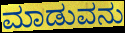
ಮಾಡುವನು